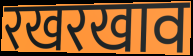
रखरखाव